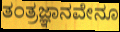
ತಂತ್ರಜ್ಞಾನವೇನೂ